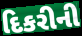
દિકરીની